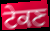
ਟੇਕਣ